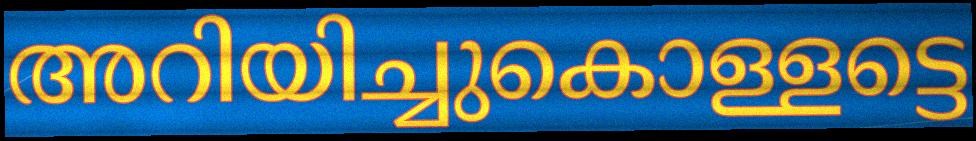
അറിയിച്ചുകൊള്ളട്ടെ